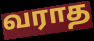
வராத